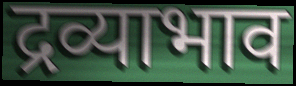
द्रव्याभाव